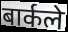
बार्कले